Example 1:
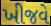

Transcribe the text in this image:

ખીજવે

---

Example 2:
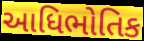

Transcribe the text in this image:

આધિભોતિક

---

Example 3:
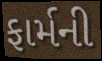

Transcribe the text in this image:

ફાર્મની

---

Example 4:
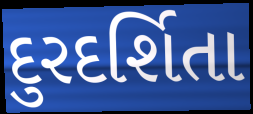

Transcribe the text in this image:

દુરદર્શિતા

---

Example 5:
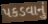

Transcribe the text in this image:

પકડવાનું